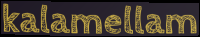
kalamellam